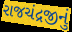
રાજચંદ્રજીનું